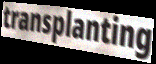
transplanting